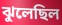
ঝুলেছিল